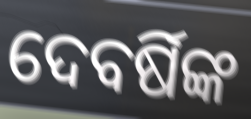
ଦେବର୍ଷିଙ୍କ